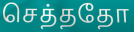
செத்ததோ